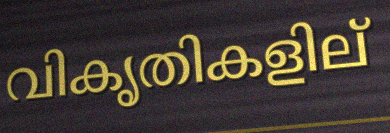
വികൃതികളില്